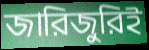
জারিজুরিই